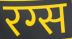
रग्स